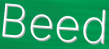
Beed